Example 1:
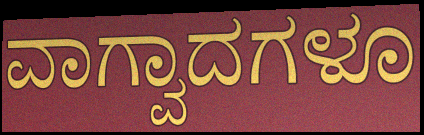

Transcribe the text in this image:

ವಾಗ್ವಾದಗಳೂ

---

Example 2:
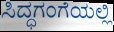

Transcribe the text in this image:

ಸಿದ್ಧಗಂಗೆಯಲ್ಲಿ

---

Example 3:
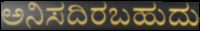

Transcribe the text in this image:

ಅನಿಸದಿರಬಹುದು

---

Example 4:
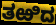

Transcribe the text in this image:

ತಱಿದ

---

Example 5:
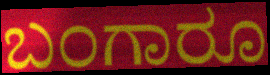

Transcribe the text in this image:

ಬಂಗಾರೂ